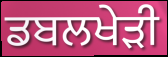
ਡਬਲਖੇੜੀ